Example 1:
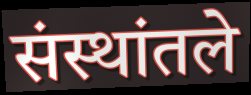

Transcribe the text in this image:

संस्थांतले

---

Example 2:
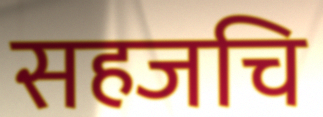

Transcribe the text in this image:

सहजचि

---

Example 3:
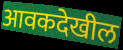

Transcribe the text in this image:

आवकदेखील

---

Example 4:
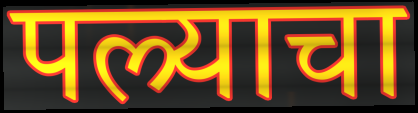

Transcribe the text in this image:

पल्याचा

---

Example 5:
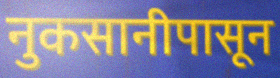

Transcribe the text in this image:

नुकसानीपासून